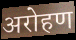
अरोहण